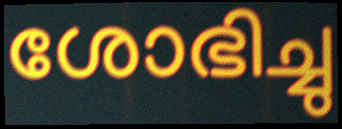
ശോഭിച്ചു